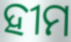
ହୀମ